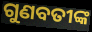
ଗୁଣବତୀଙ୍କ